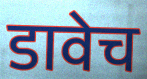
डावेच